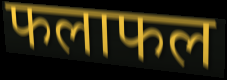
फलाफल